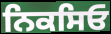
ਨਿਕਸਿਓ